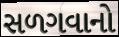
સળગવાનો